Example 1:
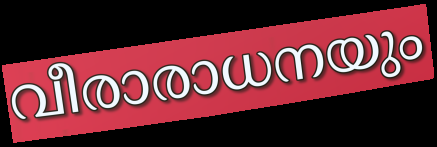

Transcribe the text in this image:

വീരാരാധനയും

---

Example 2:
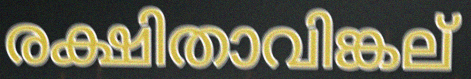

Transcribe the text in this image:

രക്ഷിതാവിങ്കല്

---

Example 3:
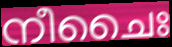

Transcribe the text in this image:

നീചൈഃ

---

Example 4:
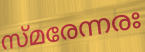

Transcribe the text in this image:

സ്മരേന്നരഃ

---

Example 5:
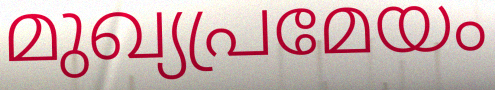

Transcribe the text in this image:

മുഖ്യപ്രമേയം